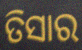
ତିସାର